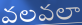
వలవలా